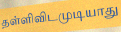
தள்ளிவிடமுடியாது